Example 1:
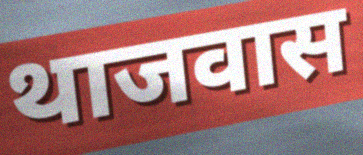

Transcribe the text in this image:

थाजवास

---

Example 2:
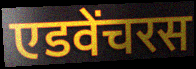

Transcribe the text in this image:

एडवेंचरस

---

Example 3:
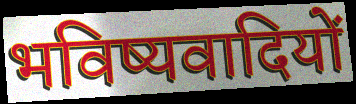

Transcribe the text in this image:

भविष्यवादियों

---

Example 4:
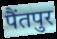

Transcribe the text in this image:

पैंतपुर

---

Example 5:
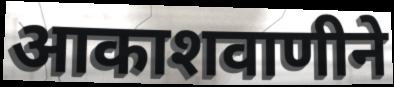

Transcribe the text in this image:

आकाशवाणीने